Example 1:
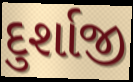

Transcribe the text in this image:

દુર્શાજી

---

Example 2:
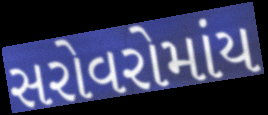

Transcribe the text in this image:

સરોવરોમાંય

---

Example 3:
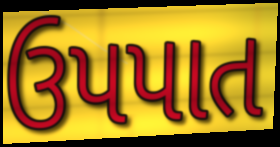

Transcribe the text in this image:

ઉપપાત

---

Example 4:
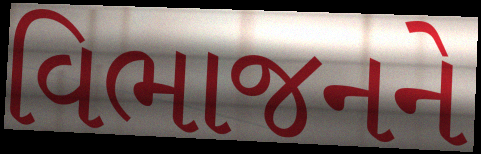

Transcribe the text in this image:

વિભાજનને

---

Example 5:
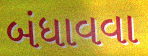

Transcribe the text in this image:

બંધાવવા